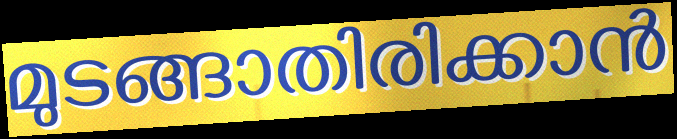
മുടങ്ങാതിരിക്കാൻ